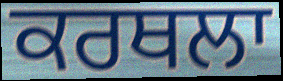
ਕਰਥਲਾ